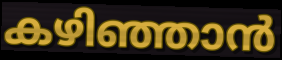
കഴിഞ്ഞാൻ